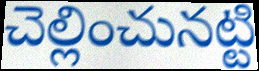
చెల్లించునట్టి